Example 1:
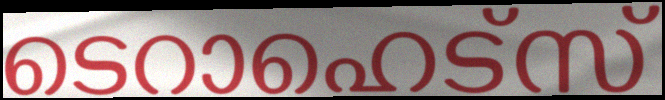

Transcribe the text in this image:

ടെറാഹെട്സ്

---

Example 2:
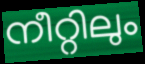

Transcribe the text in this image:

നീറ്റിലും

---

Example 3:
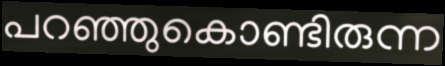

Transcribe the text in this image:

പറഞ്ഞുകൊണ്ടിരുന്ന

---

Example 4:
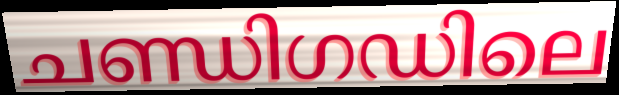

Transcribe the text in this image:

ചണ്ഡിഗഡിലെ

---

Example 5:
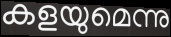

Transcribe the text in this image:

കളയുമെന്നു